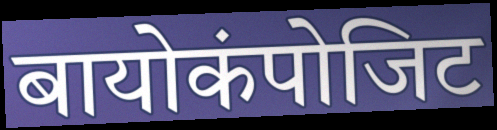
बायोकंपोजिट